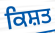
ਕਿਸ਼ਤ